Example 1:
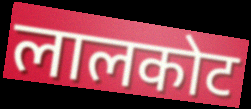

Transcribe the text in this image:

लालकोट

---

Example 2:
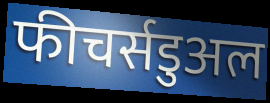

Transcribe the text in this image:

फीचर्सडुअल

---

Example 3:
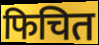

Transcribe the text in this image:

फिचित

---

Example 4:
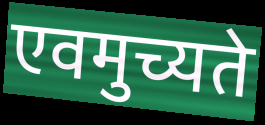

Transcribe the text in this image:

एवमुच्यते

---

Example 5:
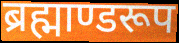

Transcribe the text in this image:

ब्रह्माण्डरूप